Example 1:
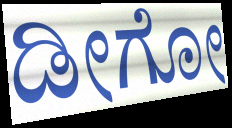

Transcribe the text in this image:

ಡೀಗೋ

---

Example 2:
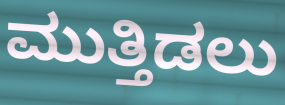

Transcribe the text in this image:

ಮುತ್ತಿಡಲು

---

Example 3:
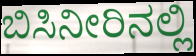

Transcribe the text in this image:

ಬಿಸಿನೀರಿನಲ್ಲಿ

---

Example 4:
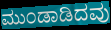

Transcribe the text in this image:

ಮುಂಡಾಡಿದವು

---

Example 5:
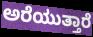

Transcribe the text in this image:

ಅರೆಯುತ್ತಾರೆ